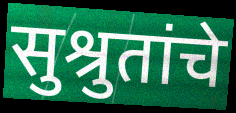
सुश्रुतांचे